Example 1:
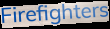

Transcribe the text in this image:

Firefighters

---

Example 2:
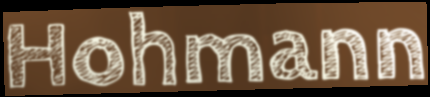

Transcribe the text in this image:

Hohmann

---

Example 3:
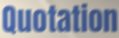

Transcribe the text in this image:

Quotation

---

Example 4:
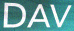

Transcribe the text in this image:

DAV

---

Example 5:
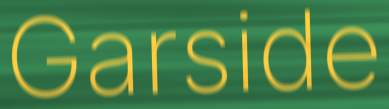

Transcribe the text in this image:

Garside